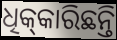
ଧିକ୍‌କାରିଛନ୍ତି